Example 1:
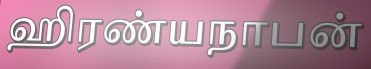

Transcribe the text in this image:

ஹிரண்யநாபன்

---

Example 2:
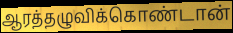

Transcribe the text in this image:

ஆரத்தழுவிக்கொண்டான்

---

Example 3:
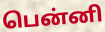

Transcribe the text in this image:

பென்னி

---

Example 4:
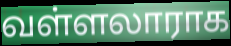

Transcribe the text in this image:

வள்ளலாராக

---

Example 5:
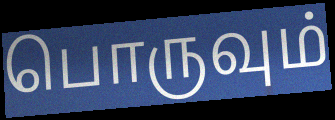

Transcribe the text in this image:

பொருவும்